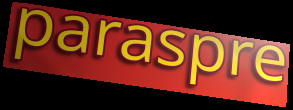
paraspre